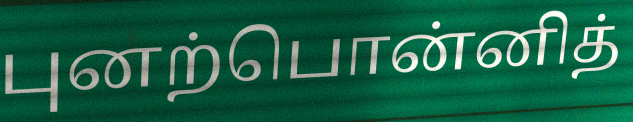
புனற்பொன்னித்